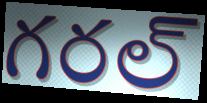
గరల్